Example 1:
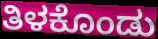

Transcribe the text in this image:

ತಿಳಕೊಂಡು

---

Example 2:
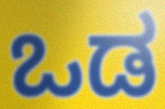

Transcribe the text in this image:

ಒಡ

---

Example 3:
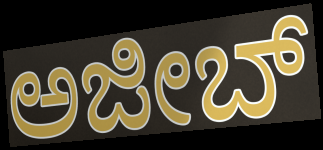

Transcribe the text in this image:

ಅಜೀಬ್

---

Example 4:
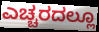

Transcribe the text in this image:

ಎಚ್ಚರದಲ್ಲೂ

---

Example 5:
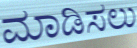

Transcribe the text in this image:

ಮಾಡಿಸಲು